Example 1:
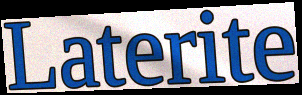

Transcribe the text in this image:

Laterite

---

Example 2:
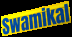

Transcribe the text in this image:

Swamikal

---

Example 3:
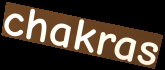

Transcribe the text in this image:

chakras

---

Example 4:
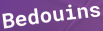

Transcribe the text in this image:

Bedouins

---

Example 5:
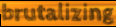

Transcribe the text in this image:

brutalizing